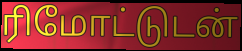
ரிமோட்டுடன்